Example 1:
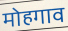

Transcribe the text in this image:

मोहगाव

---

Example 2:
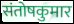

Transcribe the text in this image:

संतोषकुमार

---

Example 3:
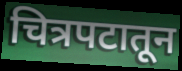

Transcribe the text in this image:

चित्रपटातून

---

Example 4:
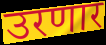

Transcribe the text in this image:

उरणार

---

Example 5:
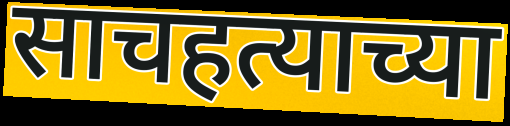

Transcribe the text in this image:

साचहत्याच्या